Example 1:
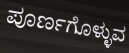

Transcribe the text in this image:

ಪೂರ್ಣಗೊಳ್ಳುವ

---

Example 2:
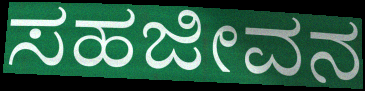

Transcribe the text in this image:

ಸಹಜೀವನ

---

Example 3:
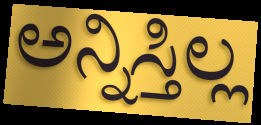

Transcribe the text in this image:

ಅನ್ನಿಸ್ತಿಲ್ಲ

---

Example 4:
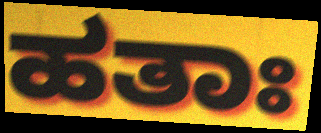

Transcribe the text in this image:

ಹತಾಃ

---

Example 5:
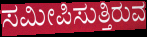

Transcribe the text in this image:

ಸಮೀಪಿಸುತ್ತಿರುವ